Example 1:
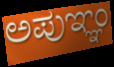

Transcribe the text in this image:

ಅಪುಞ್ಞಂ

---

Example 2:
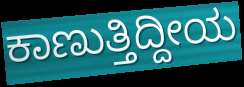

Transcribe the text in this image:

ಕಾಣುತ್ತಿದ್ದೀಯ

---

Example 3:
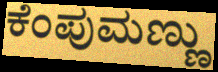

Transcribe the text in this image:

ಕೆಂಪುಮಣ್ಣು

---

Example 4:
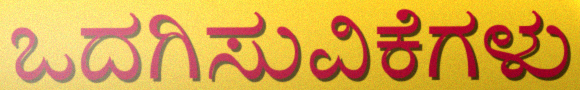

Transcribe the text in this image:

ಒದಗಿಸುವಿಕೆಗಳು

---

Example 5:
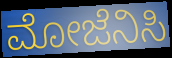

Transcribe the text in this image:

ಮೋಜೆನಿಸಿ